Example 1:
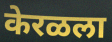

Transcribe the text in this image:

केरळला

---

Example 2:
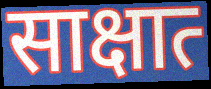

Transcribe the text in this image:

साक्षात्‍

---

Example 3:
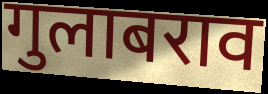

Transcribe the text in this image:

गुलाबराव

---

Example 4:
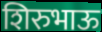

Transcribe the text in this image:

शिरुभाऊ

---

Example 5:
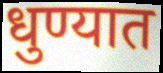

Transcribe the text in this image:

धुण्यात